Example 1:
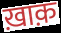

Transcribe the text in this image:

ख़ाक़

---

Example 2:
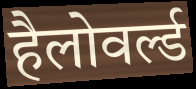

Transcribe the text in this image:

हैलोवर्ल्ड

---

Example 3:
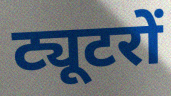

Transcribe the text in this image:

ट्यूटरों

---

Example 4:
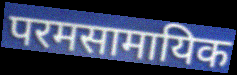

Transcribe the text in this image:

परमसामायिक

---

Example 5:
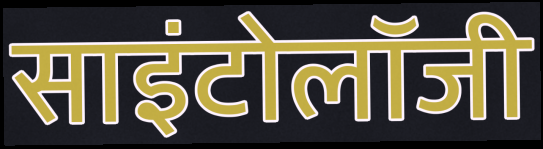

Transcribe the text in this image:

साइंटोलॉजी